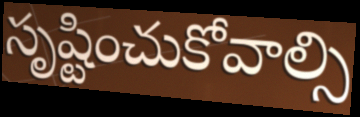
సృష్టించుకోవాల్సి